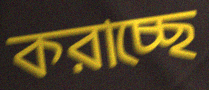
করাচ্ছে